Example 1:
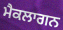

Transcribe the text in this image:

ਮੈਕਲਾਗਨ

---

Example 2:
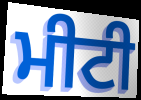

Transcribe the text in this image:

ਮੀਟੀ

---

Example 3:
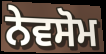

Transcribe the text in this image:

ਨੇਵਸੋਮ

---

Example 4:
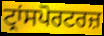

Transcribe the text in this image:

ਟ੍ਰਾਂਸਪੋਰਟਰਜ਼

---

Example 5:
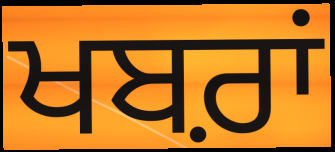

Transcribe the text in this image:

ਖਬ਼ਰਾਂ